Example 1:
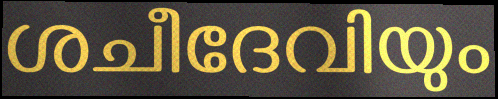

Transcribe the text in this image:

ശചീദേവിയും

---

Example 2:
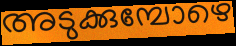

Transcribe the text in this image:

അടുക്കുമ്പോഴെ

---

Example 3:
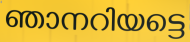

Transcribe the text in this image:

ഞാനറിയട്ടെ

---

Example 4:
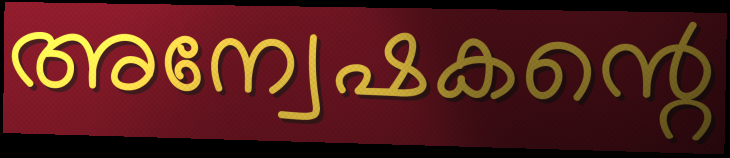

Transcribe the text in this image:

അന്വേഷകന്റെ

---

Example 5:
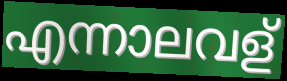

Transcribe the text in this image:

എന്നാലവള്